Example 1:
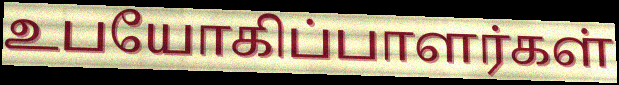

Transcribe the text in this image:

உபயோகிப்பாளர்கள்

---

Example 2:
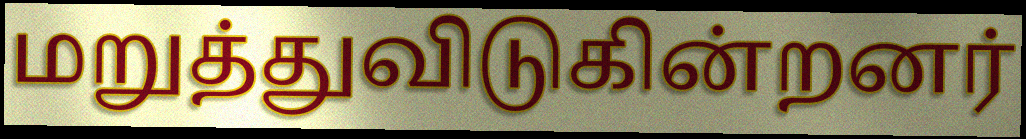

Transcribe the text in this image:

மறுத்துவிடுகின்றனர்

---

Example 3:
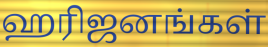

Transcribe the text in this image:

ஹரிஜனங்கள்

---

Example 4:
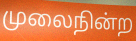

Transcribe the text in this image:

முலைநின்ற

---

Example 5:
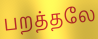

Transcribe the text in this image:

பறத்தலே